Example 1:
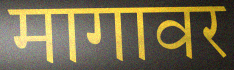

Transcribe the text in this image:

मागावर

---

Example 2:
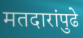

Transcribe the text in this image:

मतदारांपुढे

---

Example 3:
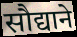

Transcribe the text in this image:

सौद्याने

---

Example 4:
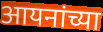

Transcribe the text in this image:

आयनांच्या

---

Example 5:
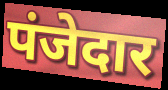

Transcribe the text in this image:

पंजेदार